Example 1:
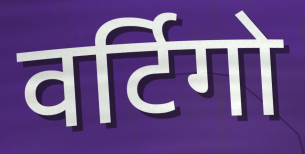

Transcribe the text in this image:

वर्टिगो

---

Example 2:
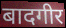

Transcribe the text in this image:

बादगीर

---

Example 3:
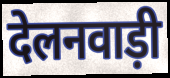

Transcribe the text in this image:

देलनवाड़ी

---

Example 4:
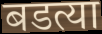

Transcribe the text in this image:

बडत्या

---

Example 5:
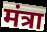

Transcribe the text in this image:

मंत्रा